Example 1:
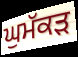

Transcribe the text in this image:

ਘੁਮੱਕਡ਼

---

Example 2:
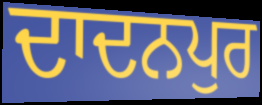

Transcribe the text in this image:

ਦਾਦਨਪੁਰ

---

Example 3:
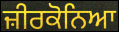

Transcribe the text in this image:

ਜ਼ੀਰਕੋਨਿਆ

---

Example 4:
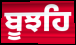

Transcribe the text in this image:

ਬੂਝਹਿ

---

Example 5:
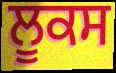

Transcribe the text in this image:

ਲੂਕਸ